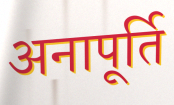
अनापूर्ति